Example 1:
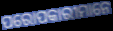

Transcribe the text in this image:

ପରୋପକାରୀମାନେ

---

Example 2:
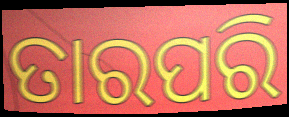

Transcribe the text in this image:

ତାରପରି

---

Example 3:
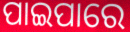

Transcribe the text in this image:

ପାଇପାରେ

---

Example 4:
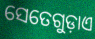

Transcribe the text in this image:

ସେତେଗୁଡ଼ାଏ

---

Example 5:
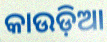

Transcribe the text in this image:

କାଉଡ଼ିଆ